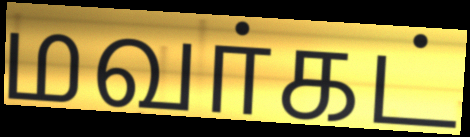
மவர்கட்